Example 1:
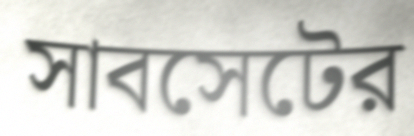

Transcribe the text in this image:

সাবসেটের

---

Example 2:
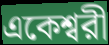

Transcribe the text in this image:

একেশ্বরী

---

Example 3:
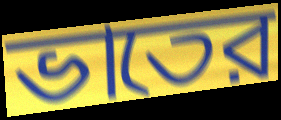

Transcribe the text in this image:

ভাতের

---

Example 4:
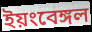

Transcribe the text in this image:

ইয়ংবেঙ্গল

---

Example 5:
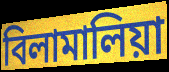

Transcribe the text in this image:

বিলামালিয়া